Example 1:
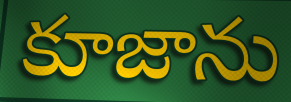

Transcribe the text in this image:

కూజాను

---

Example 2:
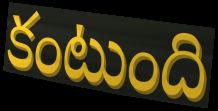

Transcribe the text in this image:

కంటుంది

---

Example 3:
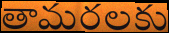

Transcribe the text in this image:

తామరలకు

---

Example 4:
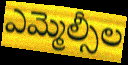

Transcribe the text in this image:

ఎమ్మెల్సీల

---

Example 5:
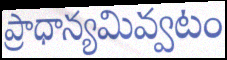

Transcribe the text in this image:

ప్రాధాన్యమివ్వటం